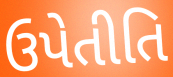
ઉપેતીતિ